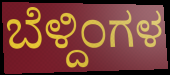
ಬೆಳ್ದಿಂಗಳ